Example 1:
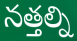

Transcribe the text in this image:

నత్తల్ని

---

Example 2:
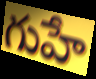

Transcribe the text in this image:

గుహే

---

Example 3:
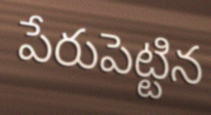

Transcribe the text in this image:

పేరుపెట్టిన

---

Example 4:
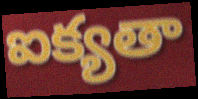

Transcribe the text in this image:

ఐక్యతా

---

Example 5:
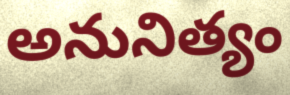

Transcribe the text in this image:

అనునిత్యం